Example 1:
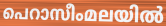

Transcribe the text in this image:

പെറാസീംമലയിൽ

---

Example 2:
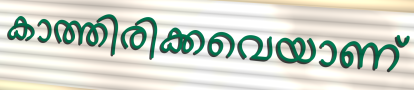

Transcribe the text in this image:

കാത്തിരിക്കവെയാണ്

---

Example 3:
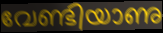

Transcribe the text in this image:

വേണ്ടിയാണു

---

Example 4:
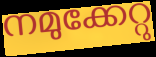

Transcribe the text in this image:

നമുക്കേറ്റു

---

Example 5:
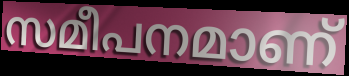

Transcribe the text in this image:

സമീപനമാണ്